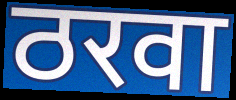
ठरवा